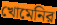
খোমেনির